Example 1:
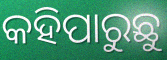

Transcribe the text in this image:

କହିପାରୁଛୁ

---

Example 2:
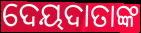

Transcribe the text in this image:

ଦେୟଦାତାଙ୍କ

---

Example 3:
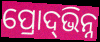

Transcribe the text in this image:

ପ୍ରୋଦ୍‌ଭିନ୍ନ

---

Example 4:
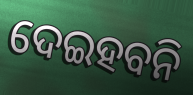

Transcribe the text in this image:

ଦେଇହବନି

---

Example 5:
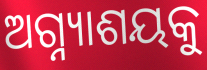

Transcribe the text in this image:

ଅଗ୍ନ୍ୟାଶୟକୁ